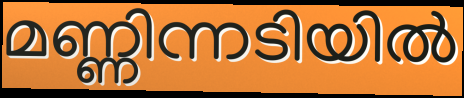
മണ്ണിന്നടിയിൽ